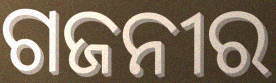
ଗଜନୀର